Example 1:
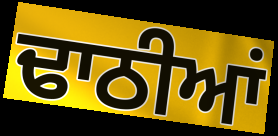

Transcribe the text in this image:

ਢਾਠੀਆਂ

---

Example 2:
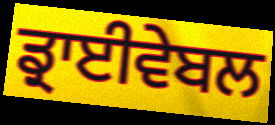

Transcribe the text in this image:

ਡ੍ਰਾਈਵੇਬਲ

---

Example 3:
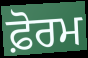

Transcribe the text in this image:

ਫ਼ੋਰਮ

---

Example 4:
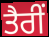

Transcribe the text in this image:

ਤੈਰੀਂ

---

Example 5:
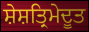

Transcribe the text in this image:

ਸ਼ੇਸ਼ਤ੍ਰਿਮੇਦੂਤ